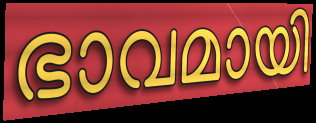
ഭാവമായി